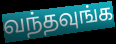
வந்தவுங்க